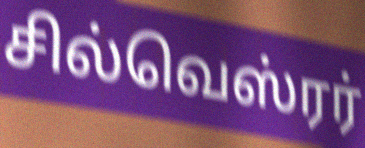
சில்வெஸ்ரர்